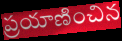
ప్రయాణించిన